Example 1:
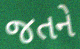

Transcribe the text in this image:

જતને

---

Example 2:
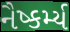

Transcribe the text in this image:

નૈષ્કર્મ્ય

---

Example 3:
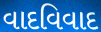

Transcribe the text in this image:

વાદવિવાદ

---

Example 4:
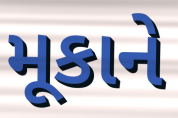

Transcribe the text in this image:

મૂકાને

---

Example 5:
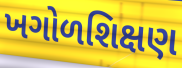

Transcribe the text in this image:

ખગોળશિક્ષણ